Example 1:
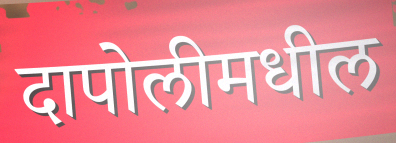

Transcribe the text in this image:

दापोलीमधील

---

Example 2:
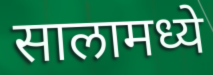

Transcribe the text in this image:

सालामध्ये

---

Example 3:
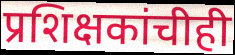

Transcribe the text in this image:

प्रशिक्षकांचीही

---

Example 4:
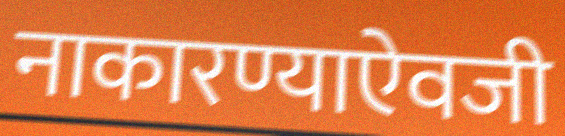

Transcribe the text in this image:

नाकारण्याऐवजी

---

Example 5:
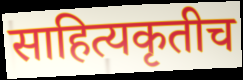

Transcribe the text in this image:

साहित्यकृतीच